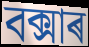
বক্সাৰ